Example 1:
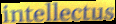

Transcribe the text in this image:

intellectus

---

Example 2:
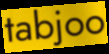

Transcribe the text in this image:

tabjoo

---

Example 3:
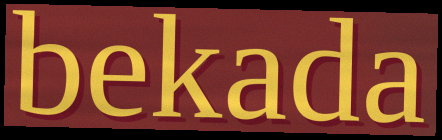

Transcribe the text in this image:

bekada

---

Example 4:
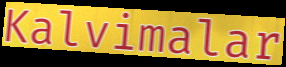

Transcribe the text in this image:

Kalvimalar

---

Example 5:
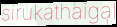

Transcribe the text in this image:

sirukathaigal